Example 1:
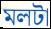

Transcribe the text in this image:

মলটা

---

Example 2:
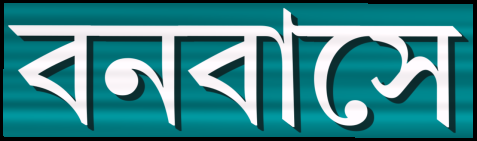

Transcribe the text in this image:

বনবাসে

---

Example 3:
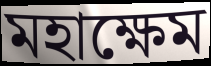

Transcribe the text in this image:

মহাক্ষেম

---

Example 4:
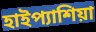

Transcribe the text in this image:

হাইপ্যাশিয়া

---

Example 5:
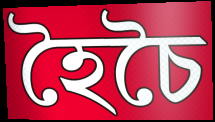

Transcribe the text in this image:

হৈচৈ